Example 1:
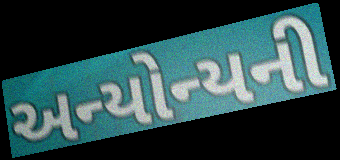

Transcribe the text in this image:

અન્યોન્યની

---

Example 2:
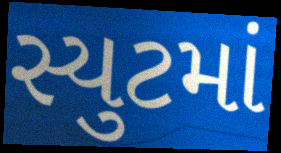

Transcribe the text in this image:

સ્યુટમાં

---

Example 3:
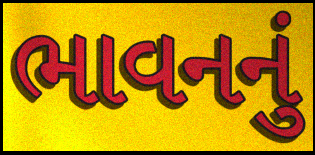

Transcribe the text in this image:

ભાવનનું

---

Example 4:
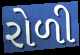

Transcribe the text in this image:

રોળી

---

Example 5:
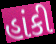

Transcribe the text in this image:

હાંકી